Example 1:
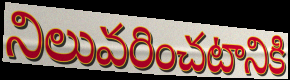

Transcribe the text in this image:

నిలువరించటానికి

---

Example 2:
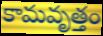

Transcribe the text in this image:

కామవృత్తం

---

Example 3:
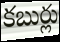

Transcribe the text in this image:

కబుర్లు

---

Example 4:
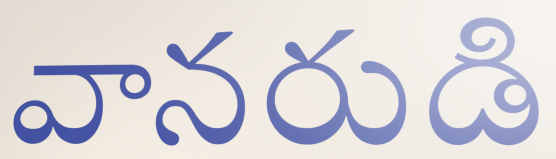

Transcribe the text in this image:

వానరుడి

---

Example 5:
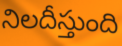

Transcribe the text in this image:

నిలదీస్తుంది